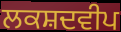
ਲਕਸ਼ਦਵੀਪ